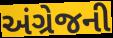
અંગ્રેજની